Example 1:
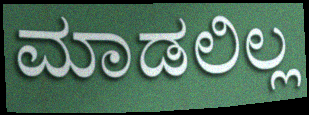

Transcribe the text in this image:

ಮಾಡಲಿಲ್ಲ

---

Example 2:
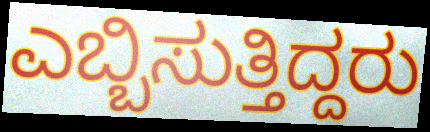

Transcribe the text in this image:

ಎಬ್ಬಿಸುತ್ತಿದ್ದರು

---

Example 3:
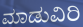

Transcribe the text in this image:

ಮಾಡುವಿರಿ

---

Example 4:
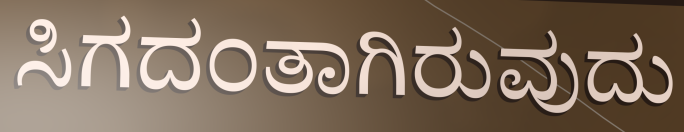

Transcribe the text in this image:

ಸಿಗದಂತಾಗಿರುವುದು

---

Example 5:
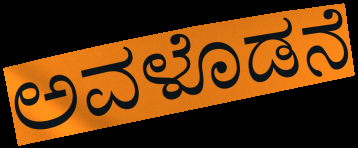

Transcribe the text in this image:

ಅವಳೊಡನೆ